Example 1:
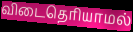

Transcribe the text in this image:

விடைதெரியாமல்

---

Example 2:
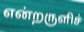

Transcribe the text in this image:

என்றருளிச்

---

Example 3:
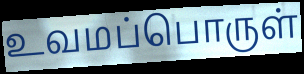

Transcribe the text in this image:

உவமப்பொருள்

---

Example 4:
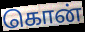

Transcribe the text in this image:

கொன்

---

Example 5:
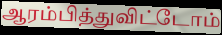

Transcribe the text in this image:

ஆரம்பித்துவிட்டோம்